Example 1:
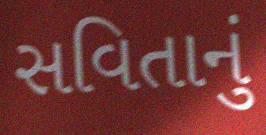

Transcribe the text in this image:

સવિતાનું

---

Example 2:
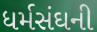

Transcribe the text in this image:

ધર્મસંઘની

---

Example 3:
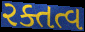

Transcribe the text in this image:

રક્તત્વ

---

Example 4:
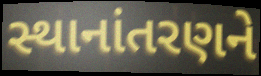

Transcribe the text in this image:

સ્થાનાંતરણને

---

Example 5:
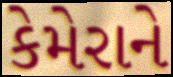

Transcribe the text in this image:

કેમેરાને